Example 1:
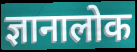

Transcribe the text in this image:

ज्ञानालोक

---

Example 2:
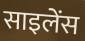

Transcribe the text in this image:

साइलेंस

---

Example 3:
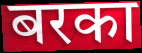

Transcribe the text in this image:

बरका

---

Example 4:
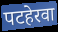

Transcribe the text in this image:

पटहेरवा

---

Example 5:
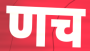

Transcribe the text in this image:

णच